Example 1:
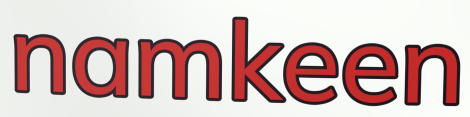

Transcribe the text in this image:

namkeen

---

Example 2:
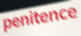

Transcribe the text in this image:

penitence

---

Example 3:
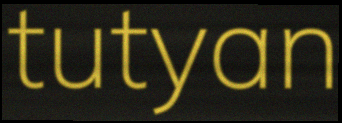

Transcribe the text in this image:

tutyan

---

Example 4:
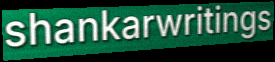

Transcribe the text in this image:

shankarwritings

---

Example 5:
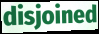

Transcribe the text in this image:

disjoined